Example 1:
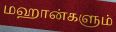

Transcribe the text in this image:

மஹான்களும்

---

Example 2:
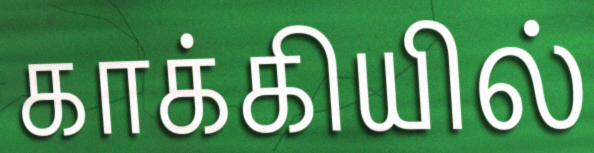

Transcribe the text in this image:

காக்கியில்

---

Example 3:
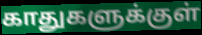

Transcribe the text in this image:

காதுகளுக்குள்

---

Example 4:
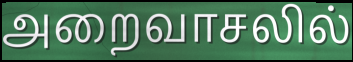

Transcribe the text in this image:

அறைவாசலில்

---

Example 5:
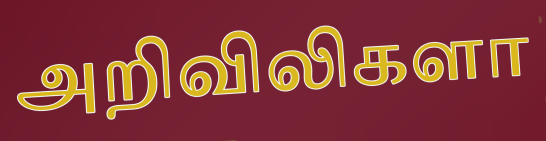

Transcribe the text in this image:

அறிவிலிகளா